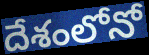
దేశంలోనో